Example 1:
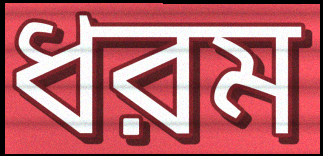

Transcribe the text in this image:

ধরম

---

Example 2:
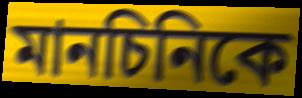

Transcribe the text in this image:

মানচিনিকে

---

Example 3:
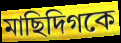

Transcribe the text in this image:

মাছিদিগকে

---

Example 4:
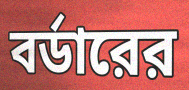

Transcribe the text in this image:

বর্ডারের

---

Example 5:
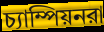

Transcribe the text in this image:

চ্যাম্পিয়নরা